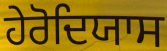
ਹੇਰੋਦਿਯਾਸ